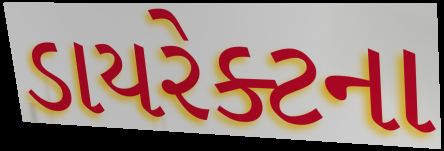
ડાયરેક્ટના